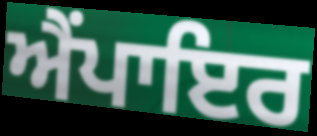
ਐੰਪਾਇਰ